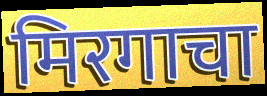
मिरगाचा